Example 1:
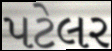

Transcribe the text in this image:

પટેલર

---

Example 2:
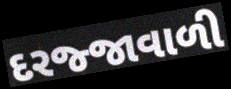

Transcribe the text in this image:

દરજ્જાવાળી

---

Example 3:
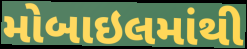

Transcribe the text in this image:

મોબાઇલમાંથી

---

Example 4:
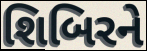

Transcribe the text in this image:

શિબિરને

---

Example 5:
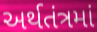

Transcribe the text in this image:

અર્થતંત્રમાં